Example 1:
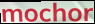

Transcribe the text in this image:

mochor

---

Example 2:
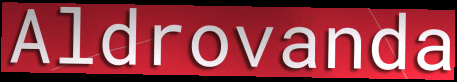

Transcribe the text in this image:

Aldrovanda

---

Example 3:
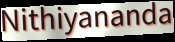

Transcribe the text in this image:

Nithiyananda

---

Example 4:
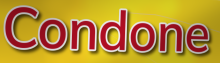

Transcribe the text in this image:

Condone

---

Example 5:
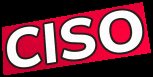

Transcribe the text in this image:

CISO